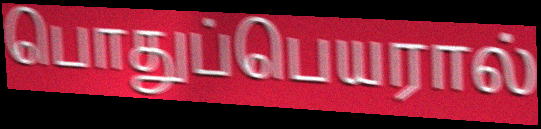
பொதுப்பெயரால்